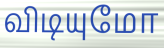
விடியுமோ